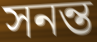
সনন্ত